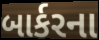
બાર્કરના